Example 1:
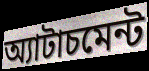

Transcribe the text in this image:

অ্যাটাচমেন্ট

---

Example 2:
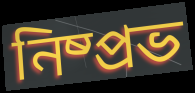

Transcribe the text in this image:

নিষ্প্রভ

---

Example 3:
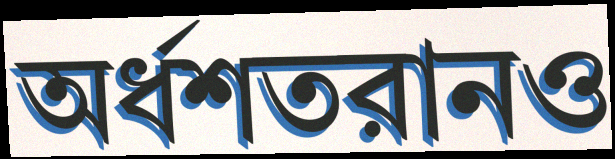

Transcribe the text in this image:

অর্ধশতরানও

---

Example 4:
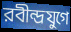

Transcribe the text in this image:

রবীন্দ্রযুগে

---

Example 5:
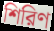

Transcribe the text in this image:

শিরিণ